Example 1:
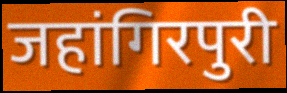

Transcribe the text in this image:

जहांगिरपुरी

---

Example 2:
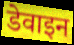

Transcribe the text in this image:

डेवाइन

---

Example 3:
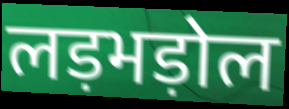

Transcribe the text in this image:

लड़भड़ोल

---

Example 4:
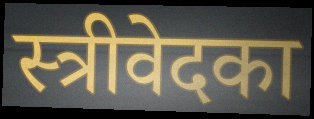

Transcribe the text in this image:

स्त्रीवेदका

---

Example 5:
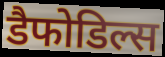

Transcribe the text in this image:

डैफोडिल्स